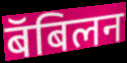
बॅबिलन